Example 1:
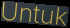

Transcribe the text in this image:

Untuk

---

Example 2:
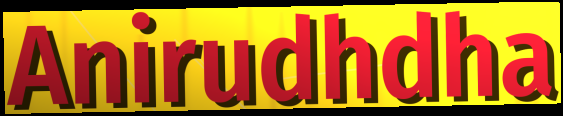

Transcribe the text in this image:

Anirudhdha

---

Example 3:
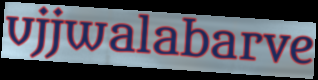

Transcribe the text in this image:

ujjwalabarve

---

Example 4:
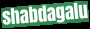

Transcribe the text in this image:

shabdagalu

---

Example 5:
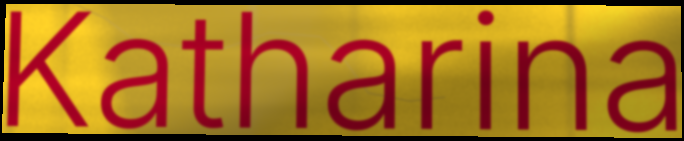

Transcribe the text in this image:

Katharina